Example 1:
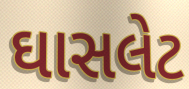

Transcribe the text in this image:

ઘાસલેટ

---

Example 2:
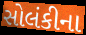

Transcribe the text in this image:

સોલંકીના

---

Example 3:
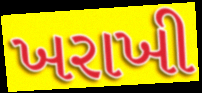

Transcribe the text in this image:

ખરાખી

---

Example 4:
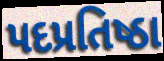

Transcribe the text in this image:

પદપ્રતિષ્ઠા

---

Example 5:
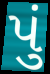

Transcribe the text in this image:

પું